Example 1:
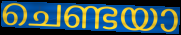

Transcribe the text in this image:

ചെണ്ടയാ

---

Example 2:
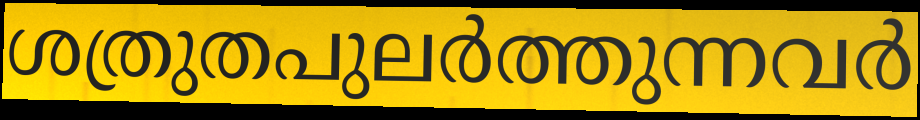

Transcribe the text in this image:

ശത്രുതപുലർത്തുന്നവർ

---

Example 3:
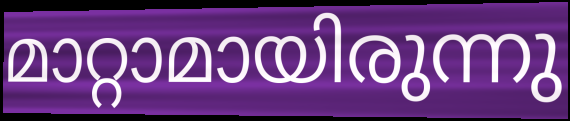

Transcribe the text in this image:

മാറ്റാമായിരുന്നു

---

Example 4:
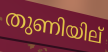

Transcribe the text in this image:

തുണിയില്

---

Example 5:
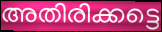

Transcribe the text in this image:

അതിരിക്കട്ടെ